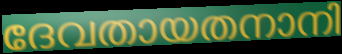
ദേവതായതനാനി